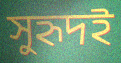
সুহৃদই